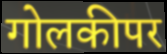
गोलकीपर